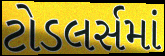
ટોડલર્સમાં